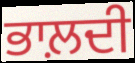
ਭਾਲ਼ਦੀ